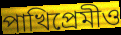
পাখিপ্রেমীও